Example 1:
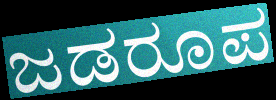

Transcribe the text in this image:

ಜಡರೂಪ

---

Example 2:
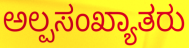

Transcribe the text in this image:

ಅಲ್ಪಸಂಖ್ಯಾತರು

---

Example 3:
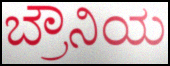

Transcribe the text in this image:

ಬ್ರೌನಿಯ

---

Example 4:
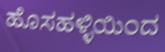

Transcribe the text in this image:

ಹೊಸಹಳ್ಳಿಯಿಂದ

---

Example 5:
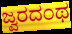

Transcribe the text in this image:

ಜ್ವರದಂಥ